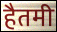
हैतमी